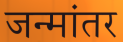
जन्मांतर